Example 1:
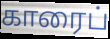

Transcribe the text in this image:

காரைப்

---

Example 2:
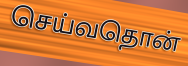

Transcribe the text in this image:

செய்வதொன்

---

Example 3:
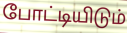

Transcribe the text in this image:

போட்டியிடும்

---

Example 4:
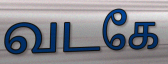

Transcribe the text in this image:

வடகே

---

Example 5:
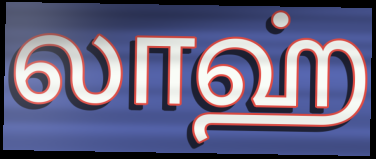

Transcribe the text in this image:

லாஹ்